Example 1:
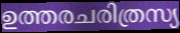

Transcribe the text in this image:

ഉത്തരചരിത്രസ്യ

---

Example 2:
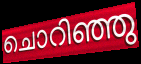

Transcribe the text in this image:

ചൊറിഞ്ഞു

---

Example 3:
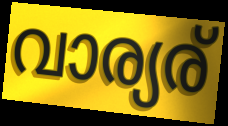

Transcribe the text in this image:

വാര്യര്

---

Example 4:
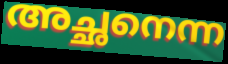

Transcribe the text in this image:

അച്ഛനെന്ന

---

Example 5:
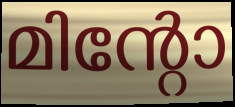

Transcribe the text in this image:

മിന്റോ